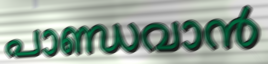
പാണ്ഡവാൻ